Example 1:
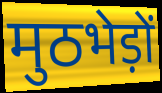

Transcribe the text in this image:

मुठभेड़ों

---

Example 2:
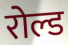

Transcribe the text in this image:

रोल्ड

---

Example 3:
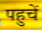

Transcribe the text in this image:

पहुचें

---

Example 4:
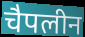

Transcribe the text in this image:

चैपलीन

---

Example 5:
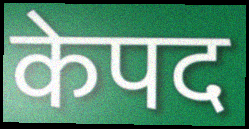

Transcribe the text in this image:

केपद